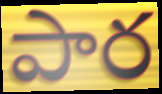
పార